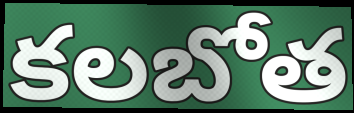
కలబోత